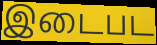
இடைபட